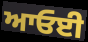
ਆਓਈ